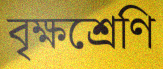
বৃক্ষশ্রেণি